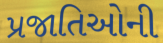
પ્રજાતિઓની